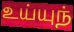
உய்யுந்